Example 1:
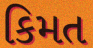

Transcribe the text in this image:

કિમત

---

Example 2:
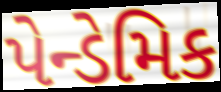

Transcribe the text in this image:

પેન્ડેમિક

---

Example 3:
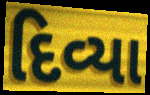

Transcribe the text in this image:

દિવ્યા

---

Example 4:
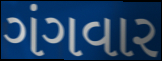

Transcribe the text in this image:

ગંગવાર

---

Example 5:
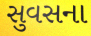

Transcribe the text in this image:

સુવસના